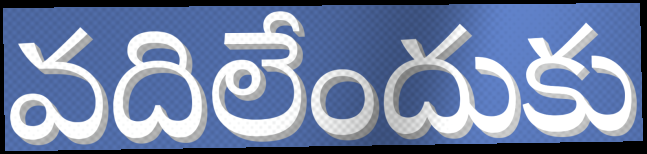
వదిలేందుకు